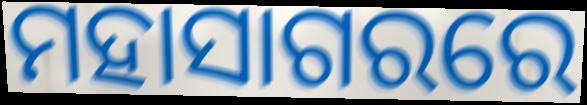
ମହାସାଗରରେ